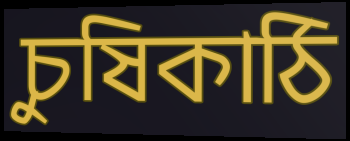
চুষিকাঠি